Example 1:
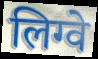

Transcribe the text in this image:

लिग्वे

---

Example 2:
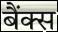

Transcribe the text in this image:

बैंक्‍स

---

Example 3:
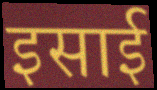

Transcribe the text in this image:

इसाई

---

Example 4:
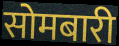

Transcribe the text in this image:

सोमबारी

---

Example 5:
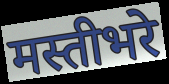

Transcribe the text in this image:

मस्तीभरे